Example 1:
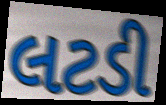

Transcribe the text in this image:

લટડી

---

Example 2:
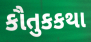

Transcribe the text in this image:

કૌતુકકથા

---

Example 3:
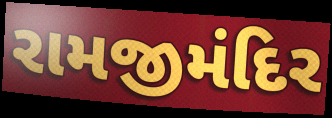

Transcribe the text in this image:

રામજીમંદિર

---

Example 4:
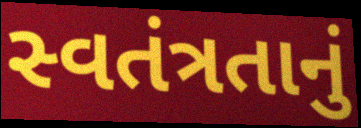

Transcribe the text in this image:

સ્વતંત્રતાનું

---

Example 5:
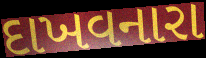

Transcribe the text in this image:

દાખવનારા